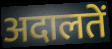
अदालतें